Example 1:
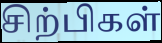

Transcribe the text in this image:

சிற்பிகள்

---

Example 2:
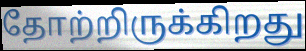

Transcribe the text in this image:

தோற்றிருக்கிறது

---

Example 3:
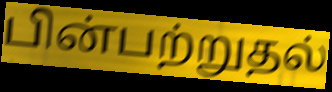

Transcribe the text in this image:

பின்பற்றுதல்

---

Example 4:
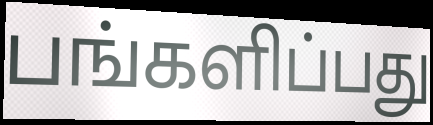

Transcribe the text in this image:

பங்களிப்பது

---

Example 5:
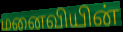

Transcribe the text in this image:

மனைவியின்